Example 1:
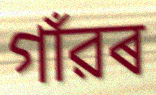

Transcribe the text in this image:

গাঁৱৰ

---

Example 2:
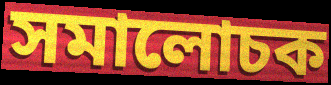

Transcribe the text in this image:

সমালোচক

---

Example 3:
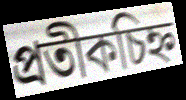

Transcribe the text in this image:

প্ৰতীকচিহ্ন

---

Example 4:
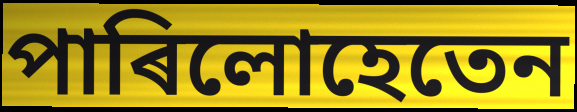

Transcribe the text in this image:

পাৰিলোহেতেন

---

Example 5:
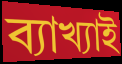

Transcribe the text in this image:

ব্যাখ্যাই